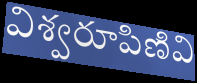
విశ్వరూపిణివి